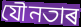
যৌনতাৰ